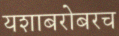
यशाबरोबरच